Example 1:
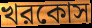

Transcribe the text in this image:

খরকোস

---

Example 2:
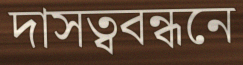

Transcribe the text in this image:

দাসত্ববন্ধনে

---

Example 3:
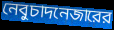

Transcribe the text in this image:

নেবুচাদনেজারের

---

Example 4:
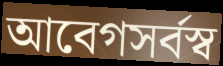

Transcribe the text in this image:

আবেগসর্বস্ব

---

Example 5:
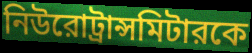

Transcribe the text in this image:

নিউরোট্রান্সমিটারকে